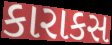
કારાકસ